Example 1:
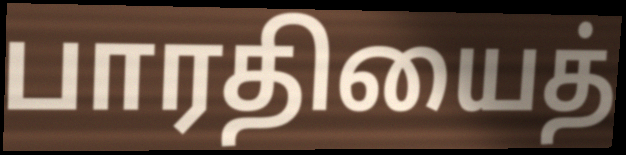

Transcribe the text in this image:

பாரதியைத்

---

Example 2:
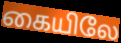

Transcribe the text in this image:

கையிலே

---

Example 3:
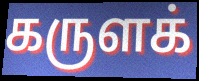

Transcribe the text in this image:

கருளக்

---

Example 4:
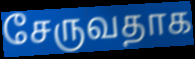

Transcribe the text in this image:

சேருவதாக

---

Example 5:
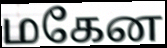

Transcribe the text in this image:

மகேன